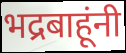
भद्रबाहूंनी